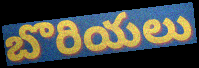
బొరియలు